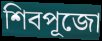
শিবপূজো